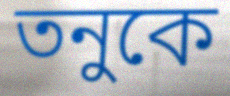
তনুকে